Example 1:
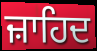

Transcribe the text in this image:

ਜ਼ਾਹਿਦ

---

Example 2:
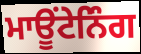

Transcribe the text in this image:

ਮਾਊਂਟੇਨਿੰਗ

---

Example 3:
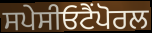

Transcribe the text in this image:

ਸਪੇਸੀਓਟੈਂਪੋਰਲ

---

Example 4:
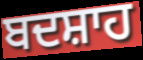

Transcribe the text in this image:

ਬਦਸ਼ਾਹ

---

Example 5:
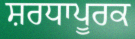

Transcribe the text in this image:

ਸ਼ਰਧਾਪੂਰਕ